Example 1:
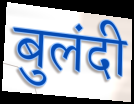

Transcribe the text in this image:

बुलंदी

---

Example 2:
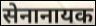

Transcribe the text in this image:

सेनानायक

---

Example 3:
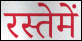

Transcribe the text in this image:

रस्तेमें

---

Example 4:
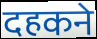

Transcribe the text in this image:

दहकने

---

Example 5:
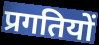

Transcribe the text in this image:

प्रगतियों